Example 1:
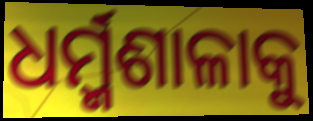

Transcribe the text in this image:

ଧର୍ମ୍ମଶାଳାକୁ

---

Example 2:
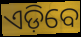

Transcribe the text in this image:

ଏଡ଼ିବେ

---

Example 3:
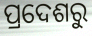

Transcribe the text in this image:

ପ୍ରଦେଶରୁ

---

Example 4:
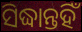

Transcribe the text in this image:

ସିଦ୍ଧାନ୍ତହିଁ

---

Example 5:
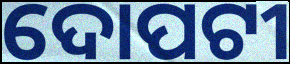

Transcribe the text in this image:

ଦୋପଟୀ